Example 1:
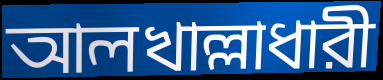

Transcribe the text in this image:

আলখাল্লাধারী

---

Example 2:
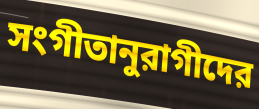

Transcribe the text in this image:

সংগীতানুরাগীদের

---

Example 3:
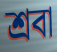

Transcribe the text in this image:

শ্রবা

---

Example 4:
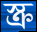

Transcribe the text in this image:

স্ক্র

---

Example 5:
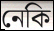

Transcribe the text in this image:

নেকি